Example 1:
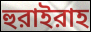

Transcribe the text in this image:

হুরাইরাহ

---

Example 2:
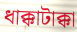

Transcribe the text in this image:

ধাক্কাটাক্কা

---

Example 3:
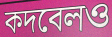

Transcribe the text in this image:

কদবেলও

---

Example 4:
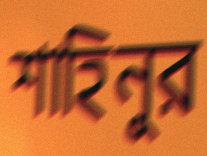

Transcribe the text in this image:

শাহিনুর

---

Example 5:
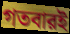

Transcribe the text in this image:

গতবারই